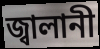
জ্বালানী